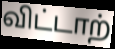
விட்டாற்